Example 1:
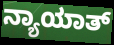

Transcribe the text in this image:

ನ್ಯಾಯಾತ್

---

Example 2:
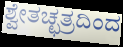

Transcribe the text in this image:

ಶ್ವೇತಚ್ಛತ್ರದಿಂದ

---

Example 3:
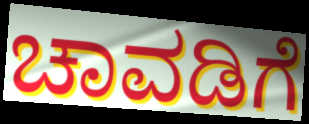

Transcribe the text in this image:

ಚಾವಡಿಗೆ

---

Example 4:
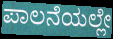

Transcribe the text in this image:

ಪಾಲನೆಯಲ್ಲೇ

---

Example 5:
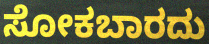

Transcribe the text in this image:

ಸೋಕಬಾರದು